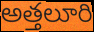
అత్తలూరి